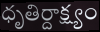
ధృతిర్దాక్ష్యం